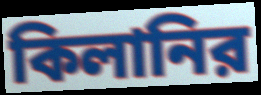
কিলানির